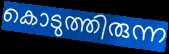
കൊടുത്തിരുന്ന